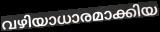
വഴിയാധാരമാക്കിയ